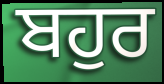
ਬਹੁਰ